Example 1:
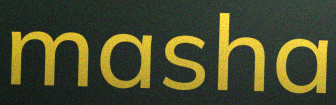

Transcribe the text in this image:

masha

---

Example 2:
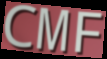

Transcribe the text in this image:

CMF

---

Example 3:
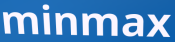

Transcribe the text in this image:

minmax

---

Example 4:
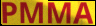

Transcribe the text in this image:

PMMA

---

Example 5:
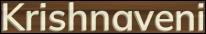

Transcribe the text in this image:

Krishnaveni